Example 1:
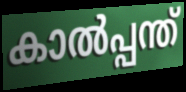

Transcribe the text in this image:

കാൽപ്പന്ത്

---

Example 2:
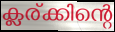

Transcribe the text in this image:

ക്ലര്ക്കിന്റെ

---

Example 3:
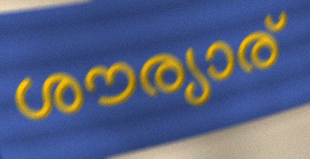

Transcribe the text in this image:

ശൗര്യാര്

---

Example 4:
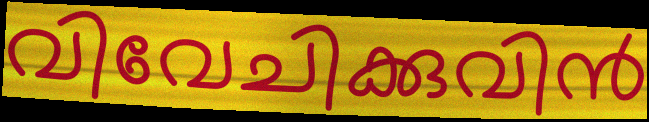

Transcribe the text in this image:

വിവേചിക്കുവിൻ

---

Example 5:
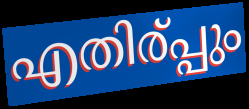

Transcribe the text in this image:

എതിര്പ്പും